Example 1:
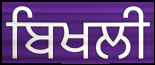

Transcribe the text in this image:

ਬਿਖਲੀ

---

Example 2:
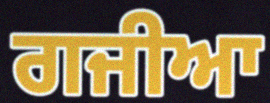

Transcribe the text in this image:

ਗਜੀਆ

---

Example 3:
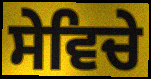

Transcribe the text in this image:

ਸੇਵਿਚੇ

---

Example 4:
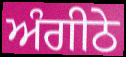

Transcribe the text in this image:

ਅੰਗੀਠੇ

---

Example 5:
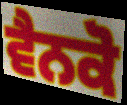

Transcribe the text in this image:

ਵੈਨਕੋ